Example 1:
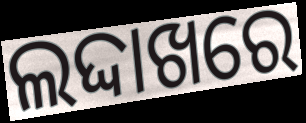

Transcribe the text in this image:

ଲଦ୍ଦାଖରେ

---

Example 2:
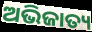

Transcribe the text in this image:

ଅଭିଜାତ୍ୟ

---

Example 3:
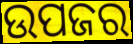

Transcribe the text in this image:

ଉପଜର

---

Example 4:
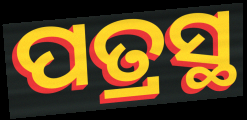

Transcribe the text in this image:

ପତ୍ରସ୍ଥ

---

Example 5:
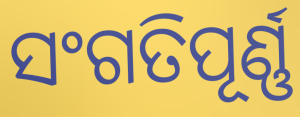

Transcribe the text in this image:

ସଂଗତିପୂର୍ଣ୍ଣ